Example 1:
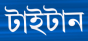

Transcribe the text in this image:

টাইটান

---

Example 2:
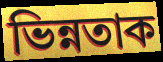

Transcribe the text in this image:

ভিন্নতাক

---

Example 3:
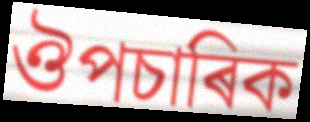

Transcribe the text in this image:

ঔপচাৰিক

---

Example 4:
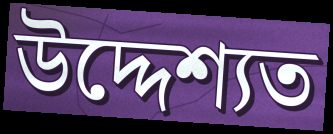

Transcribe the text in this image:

উদ্দেশ্যত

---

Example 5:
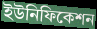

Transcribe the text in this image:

ইউনিফিকেশন